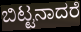
ಬಿಟ್ಟನಾದರೆ